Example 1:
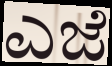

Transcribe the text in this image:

ಎಜೆ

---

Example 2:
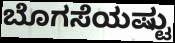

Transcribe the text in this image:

ಬೊಗಸೆಯಷ್ಟು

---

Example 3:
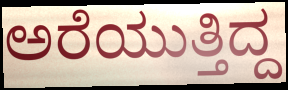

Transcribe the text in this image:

ಅರೆಯುತ್ತಿದ್ದ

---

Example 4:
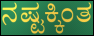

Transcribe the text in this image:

ನಷ್ಟಕ್ಕಿಂತ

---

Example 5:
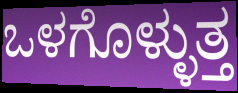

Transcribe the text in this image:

ಒಳಗೊಳ್ಳುತ್ತ